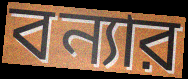
বন্যার